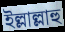
ইল্লাল্লাহু